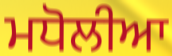
ਮਧੋਲੀਆ